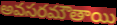
అవసరమౌతాయి